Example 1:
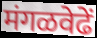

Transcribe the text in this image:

मंगळवेढें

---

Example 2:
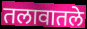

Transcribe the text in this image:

तलावातले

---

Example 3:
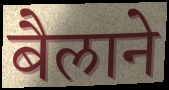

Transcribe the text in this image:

बैलाने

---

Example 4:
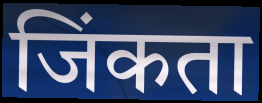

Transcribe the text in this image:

जिंकता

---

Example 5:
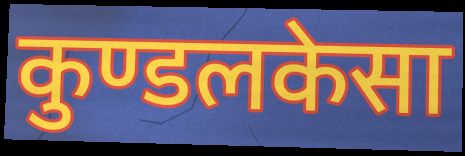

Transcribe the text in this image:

कुण्डलकेसा